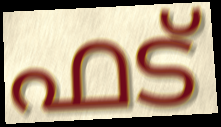
ഫട്